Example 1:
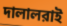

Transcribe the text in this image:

দালালরাই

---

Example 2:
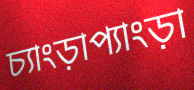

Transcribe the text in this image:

চ্যাংড়াপ্যাংড়া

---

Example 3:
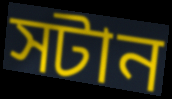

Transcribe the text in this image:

সটান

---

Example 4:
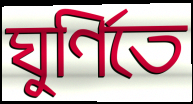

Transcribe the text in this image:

ঘুর্ণিতে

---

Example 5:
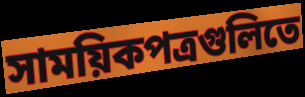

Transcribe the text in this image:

সাময়িকপত্রগুলিতে